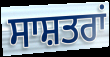
ਸਾਸ਼ਤਰਾਂ